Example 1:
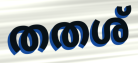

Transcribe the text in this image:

തതശ്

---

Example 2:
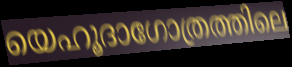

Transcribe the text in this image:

യെഹൂദാഗോത്രത്തിലെ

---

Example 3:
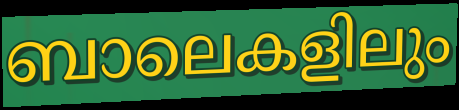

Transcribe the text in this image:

ബാലെകളിലും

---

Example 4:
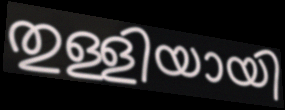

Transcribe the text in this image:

തുള്ളിയായി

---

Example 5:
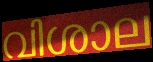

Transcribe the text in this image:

വിശാല